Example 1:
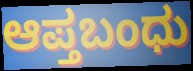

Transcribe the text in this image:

ಆಪ್ತಬಂಧು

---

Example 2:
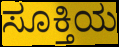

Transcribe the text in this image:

ಸೂಕ್ತಿಯ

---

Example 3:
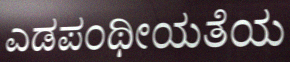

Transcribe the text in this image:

ಎಡಪಂಥೀಯತೆಯ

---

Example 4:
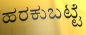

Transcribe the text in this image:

ಹರಕುಬಟ್ಟೆ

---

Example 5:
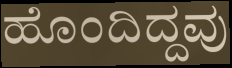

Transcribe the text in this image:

ಹೊಂದಿದ್ದವು